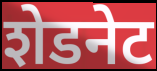
शेडनेट